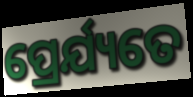
ପ୍ରେର୍ଯ୍ୟତେ